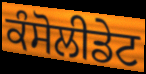
ਕੰਸੋਲੀਡੇਟ